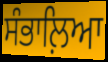
ਸੰਭਾਲ਼ਿਆ